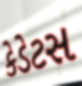
કેડેટસ